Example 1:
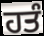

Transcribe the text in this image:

ਹਤੰ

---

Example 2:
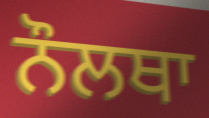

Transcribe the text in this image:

ਨੌਲਥਾ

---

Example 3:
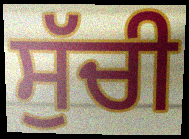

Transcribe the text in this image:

ਸੁੱਚੀ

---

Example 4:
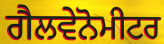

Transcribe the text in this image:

ਗੈਲਵੇਨੋਮੀਟਰ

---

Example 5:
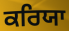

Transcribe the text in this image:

ਕਰਿਯਾ